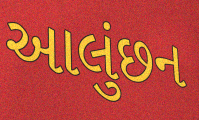
આલુંછન